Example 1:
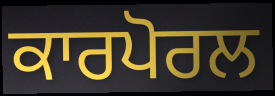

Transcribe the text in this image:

ਕਾਰਪੋਰਲ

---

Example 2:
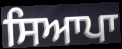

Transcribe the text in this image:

ਸਿਆਪਾ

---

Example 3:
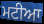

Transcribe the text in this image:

ਮਟੀਆ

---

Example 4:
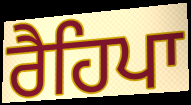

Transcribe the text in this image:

ਰੈਹਿਪਾ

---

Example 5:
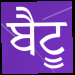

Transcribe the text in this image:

ਬੈਟੂ